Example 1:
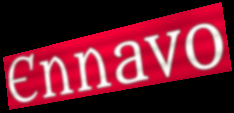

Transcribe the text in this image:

Ennavo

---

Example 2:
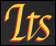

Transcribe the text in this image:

Its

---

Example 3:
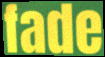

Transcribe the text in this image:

fade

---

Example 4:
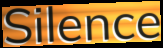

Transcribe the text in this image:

Silence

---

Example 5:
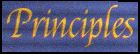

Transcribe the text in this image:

Principles